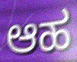
ಆಹ